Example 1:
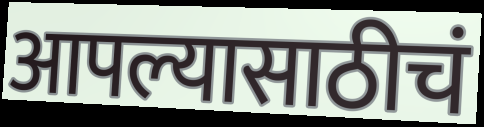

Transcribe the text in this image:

आपल्यासाठीचं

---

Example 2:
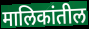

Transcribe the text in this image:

मालिकांतील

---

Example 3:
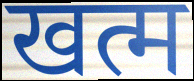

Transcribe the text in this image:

खत्म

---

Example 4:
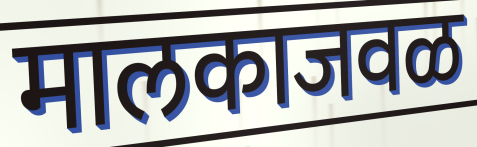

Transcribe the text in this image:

मालकाजवळ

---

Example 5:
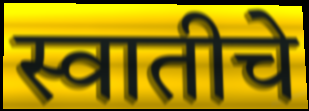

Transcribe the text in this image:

स्वातीचे